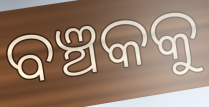
ବଞ୍ଚକକୁ